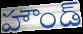
హౌండ్